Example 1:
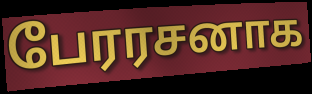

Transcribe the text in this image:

பேரரசனாக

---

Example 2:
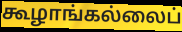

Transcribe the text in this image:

கூழாங்கல்லைப்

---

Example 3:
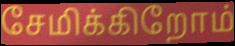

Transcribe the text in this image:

சேமிக்கிறோம்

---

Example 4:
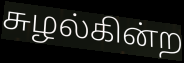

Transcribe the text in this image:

சுழல்கின்ற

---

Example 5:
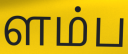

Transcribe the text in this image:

ளம்ப